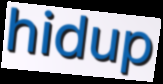
hidup